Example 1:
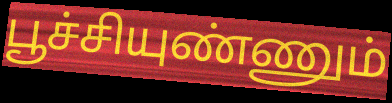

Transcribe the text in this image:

பூச்சியுண்ணும்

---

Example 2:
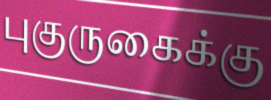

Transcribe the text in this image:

புகுருகைக்கு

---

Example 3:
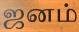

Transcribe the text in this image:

ஜனம்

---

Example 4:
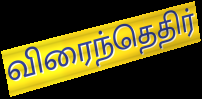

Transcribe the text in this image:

விரைந்தெதிர்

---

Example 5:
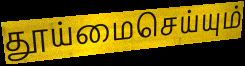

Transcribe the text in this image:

தூய்மைசெய்யும்